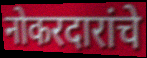
नोकरदारांचे